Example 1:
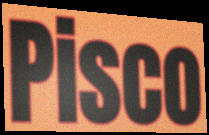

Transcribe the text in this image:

Pisco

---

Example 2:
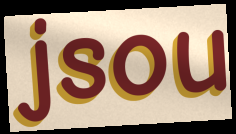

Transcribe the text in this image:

jsou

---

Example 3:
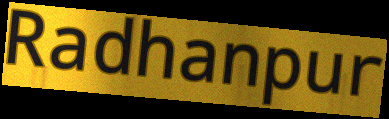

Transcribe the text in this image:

Radhanpur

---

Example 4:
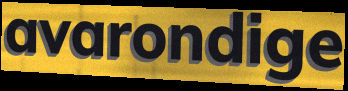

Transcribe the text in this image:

avarondige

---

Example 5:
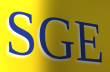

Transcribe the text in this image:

SGE